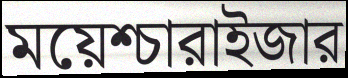
ময়েশ্চারাইজার